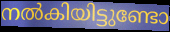
നൽകിയിട്ടുണ്ടോ